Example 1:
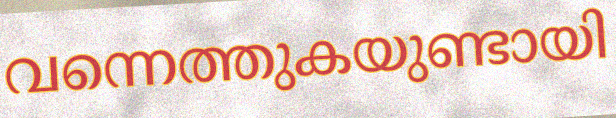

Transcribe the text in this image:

വന്നെത്തുകയുണ്ടായി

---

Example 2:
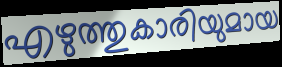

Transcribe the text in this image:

എഴുത്തുകാരിയുമായ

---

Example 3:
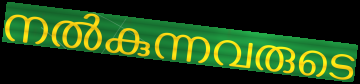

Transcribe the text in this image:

നൽകുന്നവരുടെ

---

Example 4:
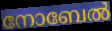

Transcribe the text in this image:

നോബേൽ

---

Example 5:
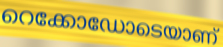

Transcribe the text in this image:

റെക്കോഡോടെയാണ്